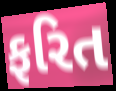
ફરિત